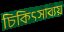
চিকিৎসাব্যয়